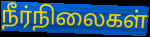
நீர்நிலைகள்